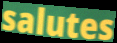
salutes